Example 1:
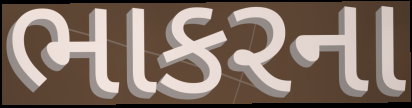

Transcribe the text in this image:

ભાકરના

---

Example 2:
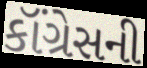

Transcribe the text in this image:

કૉંગ્રેસની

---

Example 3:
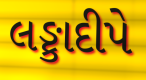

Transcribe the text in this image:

લઙ્કાદીપે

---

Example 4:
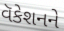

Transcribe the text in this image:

વૅકેશનને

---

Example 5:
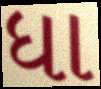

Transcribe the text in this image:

ધા